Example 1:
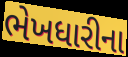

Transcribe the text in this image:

ભેખધારીના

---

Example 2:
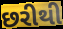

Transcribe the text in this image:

છરીથી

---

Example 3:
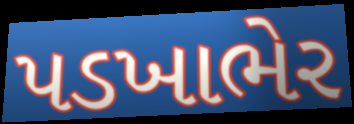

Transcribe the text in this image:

પડખાભેર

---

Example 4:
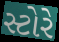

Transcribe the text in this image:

સ્ટોરે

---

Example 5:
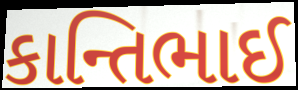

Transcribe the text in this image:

કાન્તિભાઈ